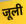
जूली